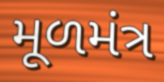
મૂળમંત્ર